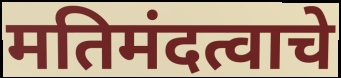
मतिमंदत्वाचे